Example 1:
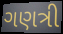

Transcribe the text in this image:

ગણત્રી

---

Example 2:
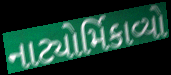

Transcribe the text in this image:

નાટ્યોર્મિકાવ્યો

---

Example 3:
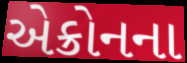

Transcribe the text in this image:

એક્રોનના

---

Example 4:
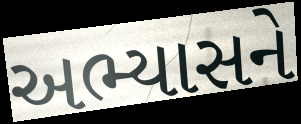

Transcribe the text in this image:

અભ્યાસને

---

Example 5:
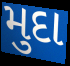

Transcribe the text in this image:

મુદા